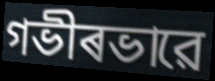
গভীৰভাৱে